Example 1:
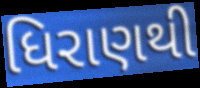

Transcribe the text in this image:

ધિરાણથી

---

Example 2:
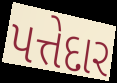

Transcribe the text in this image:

પત્તેદાર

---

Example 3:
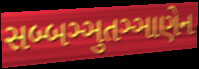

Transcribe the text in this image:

સબ્બઞ્ઞુતઞ્ઞાણેન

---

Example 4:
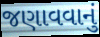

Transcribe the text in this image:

જણાવવાનું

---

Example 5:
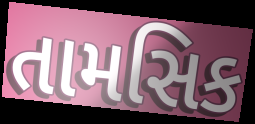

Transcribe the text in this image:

તામસિક